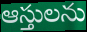
ఆస్తులను